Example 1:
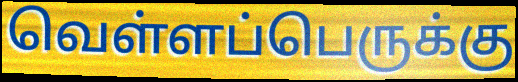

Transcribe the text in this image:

வெள்ளப்பெருக்கு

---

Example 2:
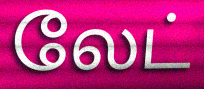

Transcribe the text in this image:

லேட்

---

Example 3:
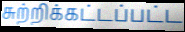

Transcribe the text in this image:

சுற்றிக்கட்டப்பட்ட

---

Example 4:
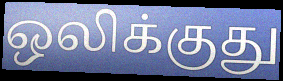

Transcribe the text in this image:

ஒலிக்குது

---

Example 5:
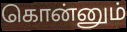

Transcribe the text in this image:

கொன்னும்